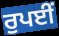
ਰੁਪਈਂ